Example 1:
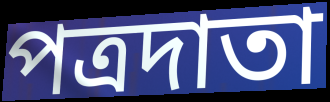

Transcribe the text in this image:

পত্রদাতা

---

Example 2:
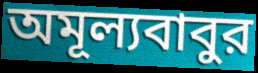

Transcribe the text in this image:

অমূল্যবাবুর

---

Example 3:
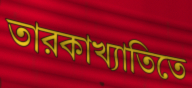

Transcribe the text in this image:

তারকাখ্যাতিতে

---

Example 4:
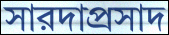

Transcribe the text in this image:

সারদাপ্রসাদ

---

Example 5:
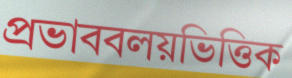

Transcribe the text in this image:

প্রভাববলয়ভিত্তিক